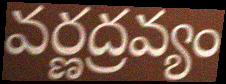
వర్ణద్రవ్యం